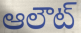
ఆలౌట్